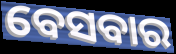
ବେସବାର